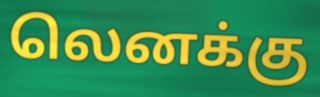
லெனக்கு